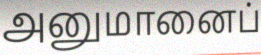
அனுமானைப்